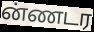
ன்ணடர